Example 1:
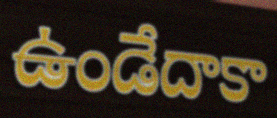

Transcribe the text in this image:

ఉండేదాకా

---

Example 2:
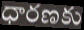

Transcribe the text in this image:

ధారణకు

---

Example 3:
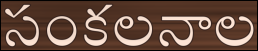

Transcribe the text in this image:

సంకలనాల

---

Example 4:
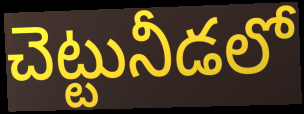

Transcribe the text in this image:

చెట్టునీడలో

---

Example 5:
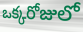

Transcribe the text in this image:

ఒక్కరోజులో